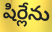
షిర్లేను